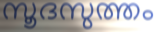
സൂദസുത്തം